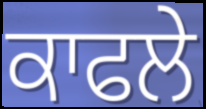
ਕਾਫਲੇ